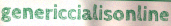
genericcialisonline